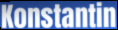
Konstantin